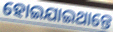
ହୋଇଯାଇଥାନ୍ତେ